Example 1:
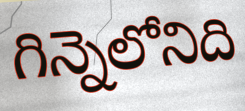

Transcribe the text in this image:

గిన్నెలోనిది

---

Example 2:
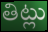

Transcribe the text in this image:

తిట్లు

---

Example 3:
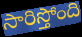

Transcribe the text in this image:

సారిస్తోంది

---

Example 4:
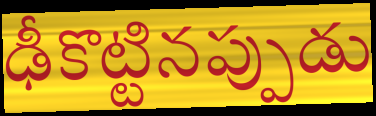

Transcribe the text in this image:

ఢీకొట్టినప్పుడు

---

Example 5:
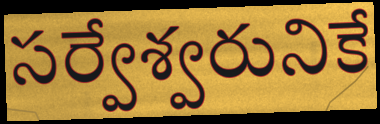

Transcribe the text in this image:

సర్వేశ్వరునికే